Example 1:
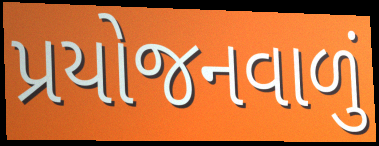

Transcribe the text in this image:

પ્રયોજનવાળું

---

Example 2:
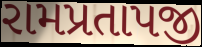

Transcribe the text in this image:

રામપ્રતાપજી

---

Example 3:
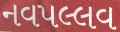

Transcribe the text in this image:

નવપલ્લવ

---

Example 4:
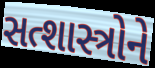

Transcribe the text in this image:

સત્શાસ્ત્રોને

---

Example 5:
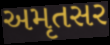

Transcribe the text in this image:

અમૃતસર